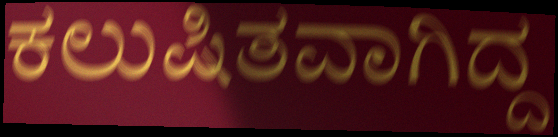
ಕಲುಷಿತವಾಗಿದ್ದ